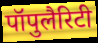
पॉपुलैरिटी